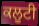
ਕਲੂਟੀ